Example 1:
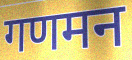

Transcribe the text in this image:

गणमन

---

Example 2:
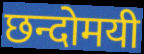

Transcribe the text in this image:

छन्दोमयी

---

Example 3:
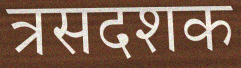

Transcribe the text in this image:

त्रसदशक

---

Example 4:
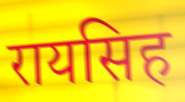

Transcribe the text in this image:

रायसिह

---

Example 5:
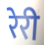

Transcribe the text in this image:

रेरी